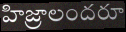
హిజ్రాలందరూ